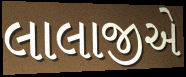
લાલાજીએ